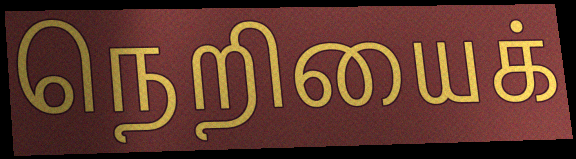
நெறியைக்